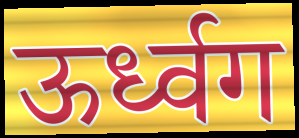
ऊर्ध्वग